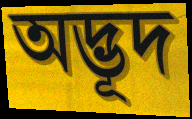
অদ্ভূদ